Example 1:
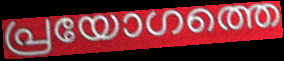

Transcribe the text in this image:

പ്രയോഗത്തെ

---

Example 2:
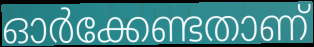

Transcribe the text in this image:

ഓർക്കേണ്ടതാണ്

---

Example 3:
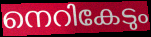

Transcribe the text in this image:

നെറികേടും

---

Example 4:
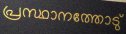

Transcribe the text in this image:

പ്രസ്ഥാനത്തോടു്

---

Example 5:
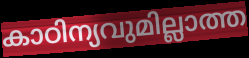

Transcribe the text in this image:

കാഠിന്യവുമില്ലാത്ത